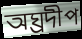
অঘ্ৰদীপ